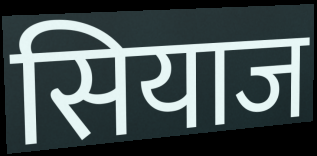
सियाज